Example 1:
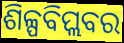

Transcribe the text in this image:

ଶିଳ୍ପବିପ୍ଲବର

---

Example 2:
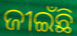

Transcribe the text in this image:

ଜୀଇଁଛି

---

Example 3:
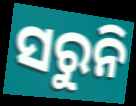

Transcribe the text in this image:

ସରୁନି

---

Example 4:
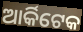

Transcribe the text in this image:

ଆର୍କିଟେକ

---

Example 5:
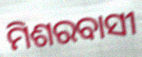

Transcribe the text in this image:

ମିଶରବାସୀ